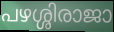
പഴശ്ശിരാജാ